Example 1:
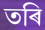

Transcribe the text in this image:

তৰি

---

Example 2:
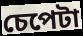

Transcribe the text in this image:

চেপেটা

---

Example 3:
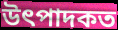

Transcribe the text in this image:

উৎপাদকত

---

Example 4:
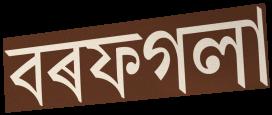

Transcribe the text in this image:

বৰফগলা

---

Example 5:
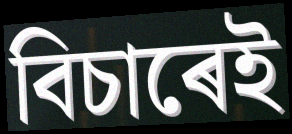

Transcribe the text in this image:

বিচাৰেই